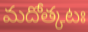
మదోత్కటః